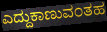
ಎದ್ದುಕಾಣುವಂತಹ